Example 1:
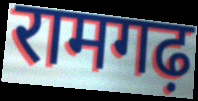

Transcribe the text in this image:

रामगढ़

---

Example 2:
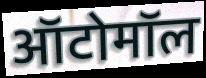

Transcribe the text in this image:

ऑटोमॉल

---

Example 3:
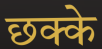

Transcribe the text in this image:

छक्के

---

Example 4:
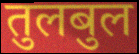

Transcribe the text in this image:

तुलबुल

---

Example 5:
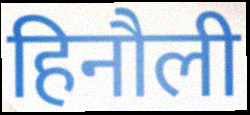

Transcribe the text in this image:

हिनौली